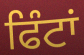
ਫਿੰਟਾਂ